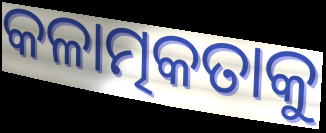
କଳାତ୍ମକତାକୁ